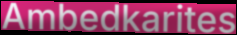
Ambedkarites